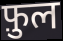
फ़ुल